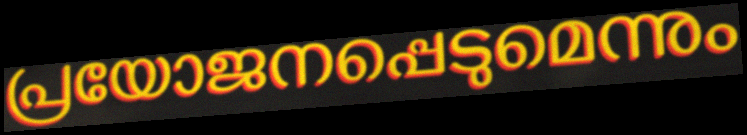
പ്രയോജനപ്പെടുമെന്നും